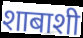
शाबाशी